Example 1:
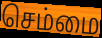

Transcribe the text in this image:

செம்மை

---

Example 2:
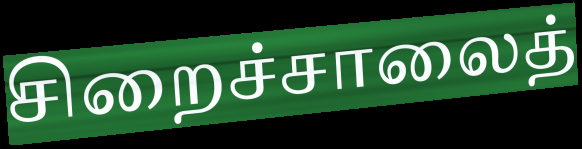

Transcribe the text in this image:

சிறைச்சாலைத்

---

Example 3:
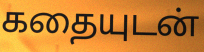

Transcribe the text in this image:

கதையுடன்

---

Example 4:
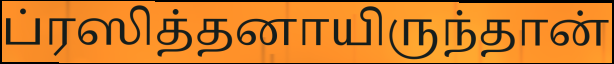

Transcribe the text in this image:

ப்ரஸித்தனாயிருந்தான்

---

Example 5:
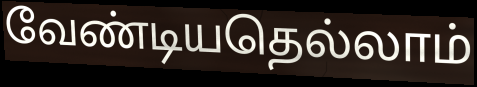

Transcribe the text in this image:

வேண்டியதெல்லாம்